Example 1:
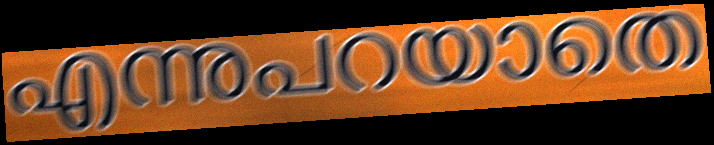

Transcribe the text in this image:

എന്നുപറയാതെ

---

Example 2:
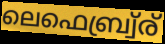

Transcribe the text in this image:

ലെഫെബ്ര്വ്ര്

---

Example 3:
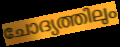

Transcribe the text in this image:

ചോദ്യത്തിലും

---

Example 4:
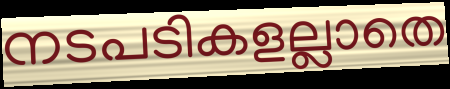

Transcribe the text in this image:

നടപടികളല്ലാതെ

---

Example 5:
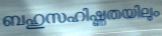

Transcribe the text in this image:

ബഹുസഹിഷ്ണതയിലും